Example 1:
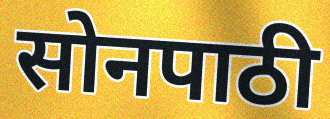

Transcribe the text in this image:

सोनपाठी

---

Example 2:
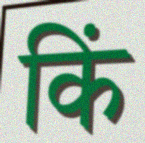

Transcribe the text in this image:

किं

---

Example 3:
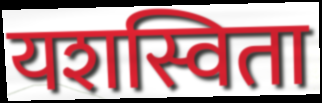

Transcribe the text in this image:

यशस्विता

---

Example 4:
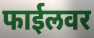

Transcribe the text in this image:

फाईलवर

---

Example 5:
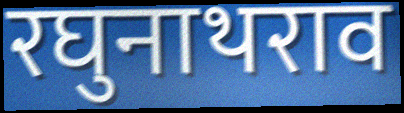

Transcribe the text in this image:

रघुनाथराव